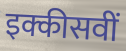
इक्कीसवीं